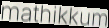
mathikkum